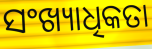
ସଂଖ୍ୟାଧିକତା